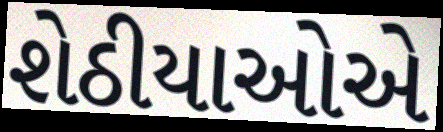
શેઠીયાઓએ